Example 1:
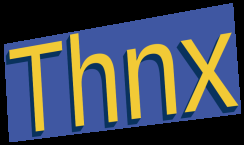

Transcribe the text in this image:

Thnx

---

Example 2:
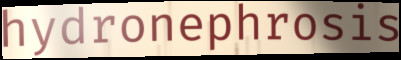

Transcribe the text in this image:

hydronephrosis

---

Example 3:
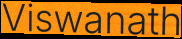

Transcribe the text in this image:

Viswanath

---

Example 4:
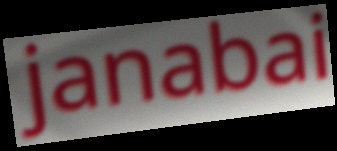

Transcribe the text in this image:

janabai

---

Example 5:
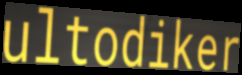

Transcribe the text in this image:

ultodiker